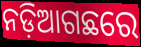
ନଡ଼ିଆଗଛରେ